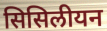
सिसिलीयन